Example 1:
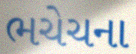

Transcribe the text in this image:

ભચેચના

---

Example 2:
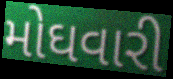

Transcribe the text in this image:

મોઘવારી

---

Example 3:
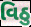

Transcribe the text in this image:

વિઠુ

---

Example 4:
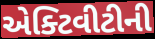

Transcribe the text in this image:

એક્ટિવીટીની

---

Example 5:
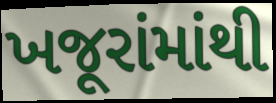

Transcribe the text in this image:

ખજૂરાંમાંથી